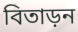
বিতাড়ন